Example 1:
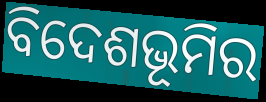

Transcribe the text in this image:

ବିଦେଶଭୂମିର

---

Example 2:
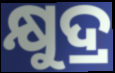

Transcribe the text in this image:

କ୍ଷୁଦ୍ର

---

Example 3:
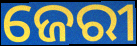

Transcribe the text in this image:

ଜେରୀ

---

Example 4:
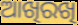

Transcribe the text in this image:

ଆଖିରଖି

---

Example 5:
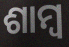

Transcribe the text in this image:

ଶାମ୍ୱ